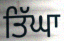
ਤਿੱਘਾ